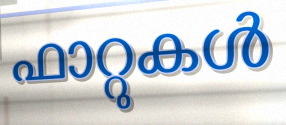
ഫാറ്റുകൾ